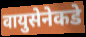
वायुसेनेकडे